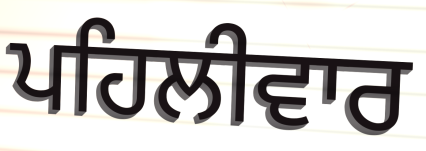
ਪਹਿਲੀਵਾਰ